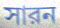
সারন